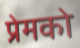
प्रेमको